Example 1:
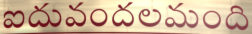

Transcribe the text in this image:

ఐదువందలమంది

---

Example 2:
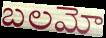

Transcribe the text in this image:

బలమో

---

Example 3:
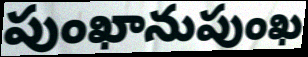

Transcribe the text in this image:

పుంఖానుపుంఖ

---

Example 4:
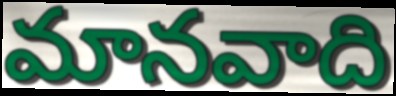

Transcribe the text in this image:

మానవాది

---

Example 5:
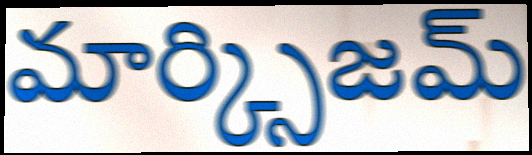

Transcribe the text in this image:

మార్క్సిజమ్